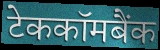
टेककॉमबैंक